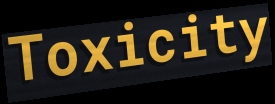
Toxicity